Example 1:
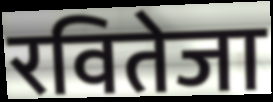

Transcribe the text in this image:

रवितेजा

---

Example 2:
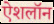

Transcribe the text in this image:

ऐशलॉन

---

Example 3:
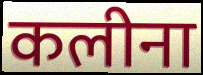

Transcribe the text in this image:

कलीना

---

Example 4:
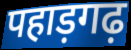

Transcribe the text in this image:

पहाड़गढ़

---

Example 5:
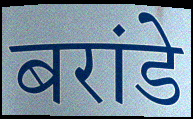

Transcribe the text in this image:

बरांडे